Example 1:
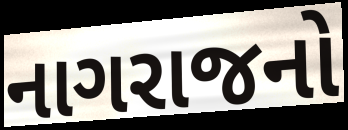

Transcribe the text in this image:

નાગરાજનો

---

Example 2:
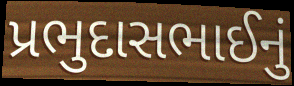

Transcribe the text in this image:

પ્રભુદાસભાઈનું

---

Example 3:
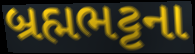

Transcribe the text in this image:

બ્રહ્મભટ્ટના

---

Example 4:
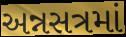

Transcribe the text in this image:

અન્નસત્રમાં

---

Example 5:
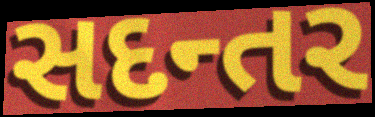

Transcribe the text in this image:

સદન્તર